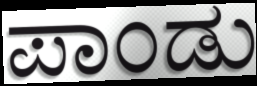
ಪಾಂಡು